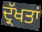
ਦ੍ਰੱਖਤਾਂ